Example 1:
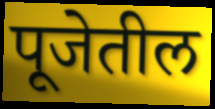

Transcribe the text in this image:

पूजेतील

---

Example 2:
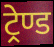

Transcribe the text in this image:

ट्रेण्ड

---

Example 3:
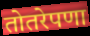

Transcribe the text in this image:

तोतरेपणा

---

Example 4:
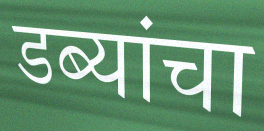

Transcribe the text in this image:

डब्यांचा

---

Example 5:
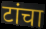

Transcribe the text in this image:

टांचा